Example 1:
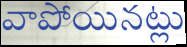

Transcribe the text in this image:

వాపోయినట్లు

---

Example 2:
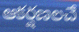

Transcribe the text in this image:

ఆకర్షణలచే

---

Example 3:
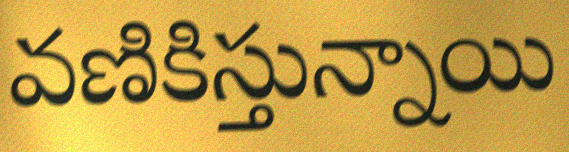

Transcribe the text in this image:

వణికిస్తున్నాయి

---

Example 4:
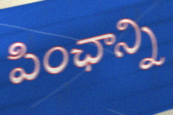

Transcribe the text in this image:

పింఛాన్ని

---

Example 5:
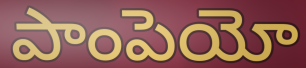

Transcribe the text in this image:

పాంపెయో